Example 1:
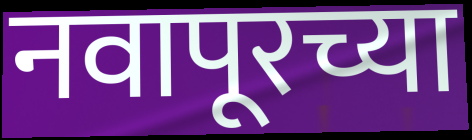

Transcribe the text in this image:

नवापूरच्या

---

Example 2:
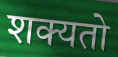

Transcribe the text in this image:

शक्‍यतो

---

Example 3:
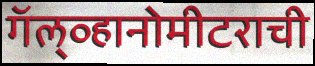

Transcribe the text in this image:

गॅल्व्हानोमीटराची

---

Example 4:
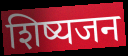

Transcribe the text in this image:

शिष्यजन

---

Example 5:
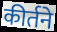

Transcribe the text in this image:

कीर्तने